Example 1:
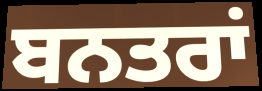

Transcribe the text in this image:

ਬਨਤਰਾਂ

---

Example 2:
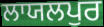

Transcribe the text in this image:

ਲਾਯਲਪੁਰ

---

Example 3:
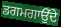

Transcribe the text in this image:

ਡਗਮਗਾਉਂਦੇ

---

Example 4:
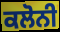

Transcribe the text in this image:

ਕਲੋਨੀ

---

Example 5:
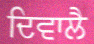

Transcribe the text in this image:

ਦਿਵਾਲੈ